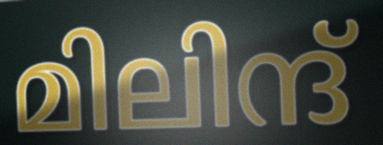
മിലിന്ദ്